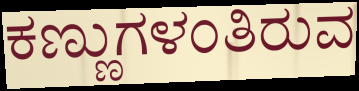
ಕಣ್ಣುಗಳಂತಿರುವ